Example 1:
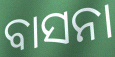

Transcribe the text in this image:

ବାସନା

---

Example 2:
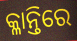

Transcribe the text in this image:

କ୍ଳାନ୍ତିରେ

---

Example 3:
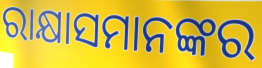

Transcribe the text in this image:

ରାକ୍ଷାସମାନଙ୍କର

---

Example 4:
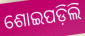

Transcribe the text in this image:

ଶୋଇପଡ଼ିଲି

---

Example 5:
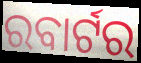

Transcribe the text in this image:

ରବାର୍ଟର